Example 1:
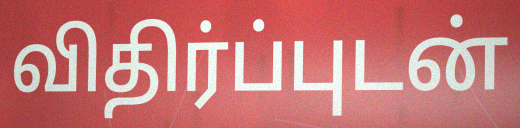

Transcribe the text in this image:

விதிர்ப்புடன்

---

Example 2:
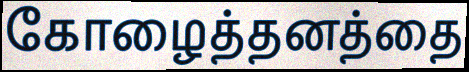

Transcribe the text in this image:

கோழைத்தனத்தை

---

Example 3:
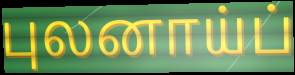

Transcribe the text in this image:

புலனாய்ப்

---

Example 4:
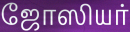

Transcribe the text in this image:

ஜோஸியர்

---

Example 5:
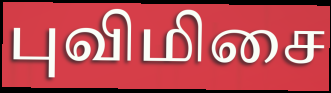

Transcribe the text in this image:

புவிமிசை